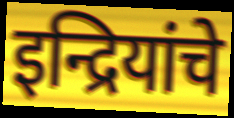
इन्द्रियांचे